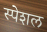
स्पेशल